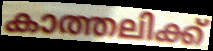
കാത്തലിക്ക്